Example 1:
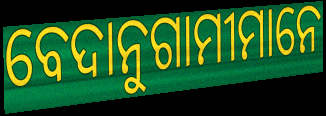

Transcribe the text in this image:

ବେଦାନୁଗାମୀମାନେ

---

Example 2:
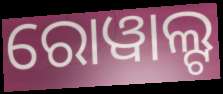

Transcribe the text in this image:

ରୋୱାଲ୍ଟ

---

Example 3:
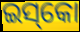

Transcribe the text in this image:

ଇସ୍‌କୋ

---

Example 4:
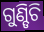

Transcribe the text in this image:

ଗୁଣ୍ଡିଚି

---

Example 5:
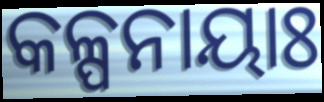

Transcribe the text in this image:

କଳ୍ପନାୟାଃ